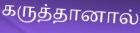
கருத்தானால்